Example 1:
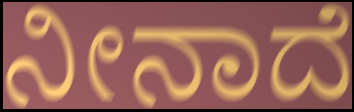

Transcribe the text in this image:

ನೀನಾದೆ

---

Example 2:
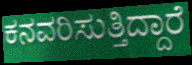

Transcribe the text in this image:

ಕನವರಿಸುತ್ತಿದ್ದಾರೆ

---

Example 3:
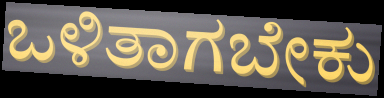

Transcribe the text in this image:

ಒಳಿತಾಗಬೇಕು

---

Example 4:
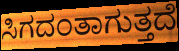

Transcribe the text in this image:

ಸಿಗದಂತಾಗುತ್ತದೆ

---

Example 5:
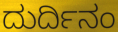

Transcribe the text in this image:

ದುರ್ದಿನಂ